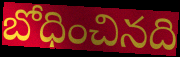
బోధించినది